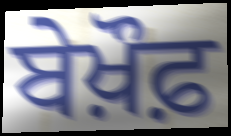
ਬੇਖ਼ੌਫ਼